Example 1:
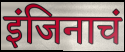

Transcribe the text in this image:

इंजिनाचं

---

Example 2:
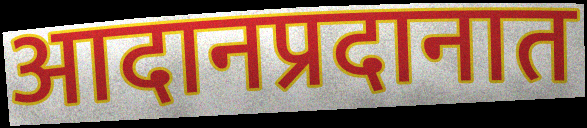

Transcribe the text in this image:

आदानप्रदानात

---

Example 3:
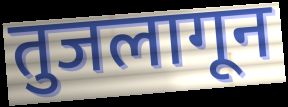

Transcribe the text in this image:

तुजलागून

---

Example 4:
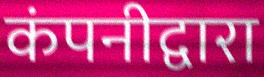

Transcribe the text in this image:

कंपनीद्वारा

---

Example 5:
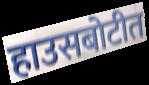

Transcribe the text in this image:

हाउसबोटीत